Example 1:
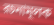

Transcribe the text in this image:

রচনামূলক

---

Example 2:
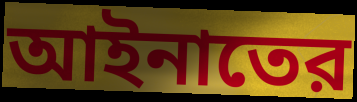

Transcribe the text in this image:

আইনাতের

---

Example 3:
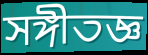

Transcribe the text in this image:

সঙ্গীতজ্ঞ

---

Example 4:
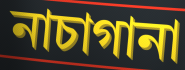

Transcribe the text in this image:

নাচাগানা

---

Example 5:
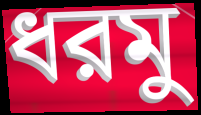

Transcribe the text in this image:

ধরমু